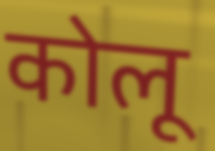
कोलू